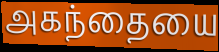
அகந்தையை